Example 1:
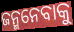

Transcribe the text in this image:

ଜନ୍ମନେବାକୁ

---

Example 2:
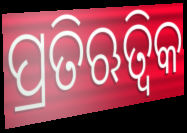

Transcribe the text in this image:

ପ୍ରତିଋତ୍ୱିକ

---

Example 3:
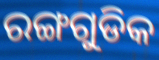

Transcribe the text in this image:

ରଙ୍ଗଗୁଡିକ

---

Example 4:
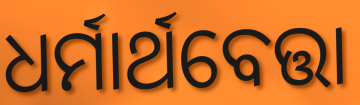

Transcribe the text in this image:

ଧର୍ମାର୍ଥବେତ୍ତା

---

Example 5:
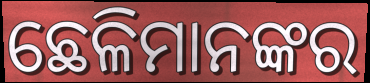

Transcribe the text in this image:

ଛେଳିମାନଙ୍କର